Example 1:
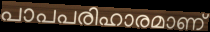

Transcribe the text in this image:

പാപപരിഹാരമാണ്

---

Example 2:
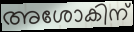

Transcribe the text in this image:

അശോകിന്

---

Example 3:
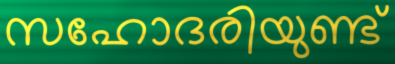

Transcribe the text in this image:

സഹോദരിയുണ്ട്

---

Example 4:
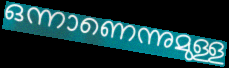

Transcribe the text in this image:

ഒന്നാണെന്നുമുള്ള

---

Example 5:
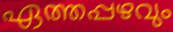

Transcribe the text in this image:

ഏത്തപ്പഴവും